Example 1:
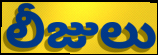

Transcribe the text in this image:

లీజులు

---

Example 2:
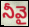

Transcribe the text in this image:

నీవై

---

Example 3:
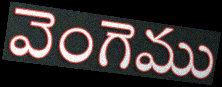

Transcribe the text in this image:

వెంగెము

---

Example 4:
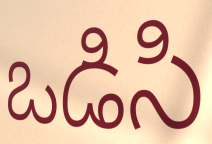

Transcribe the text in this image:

ఒడిసి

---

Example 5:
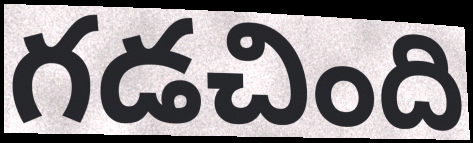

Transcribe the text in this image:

గడచింది